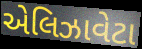
એલિઝાવેટા